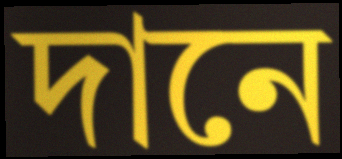
দানে